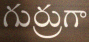
గుర్రుగా